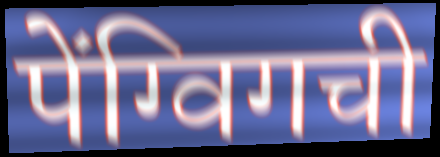
पेंग्विगची